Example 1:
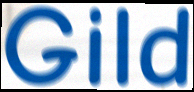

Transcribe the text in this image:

Gild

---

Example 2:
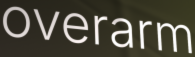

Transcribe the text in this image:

overarm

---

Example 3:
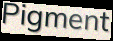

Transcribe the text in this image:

Pigment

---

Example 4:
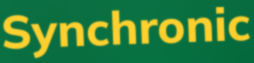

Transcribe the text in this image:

Synchronic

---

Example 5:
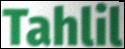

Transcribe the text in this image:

Tahlil